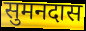
सुमनदास